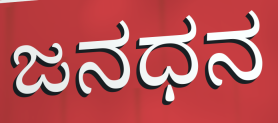
ಜನಧನ